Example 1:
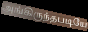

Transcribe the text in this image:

அங்கிருந்தபடியே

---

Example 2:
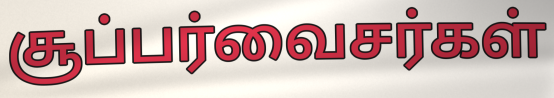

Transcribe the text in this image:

சூப்பர்வைசர்கள்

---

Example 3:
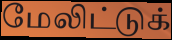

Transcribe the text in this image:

மேலிட்டுக்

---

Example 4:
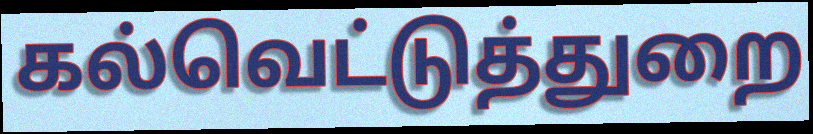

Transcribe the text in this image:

கல்வெட்டுத்துறை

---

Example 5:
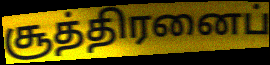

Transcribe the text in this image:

சூத்திரனைப்